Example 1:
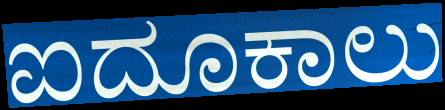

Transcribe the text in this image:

ಐದೂಕಾಲು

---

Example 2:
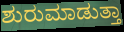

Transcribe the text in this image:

ಶುರುಮಾಡುತ್ತಾ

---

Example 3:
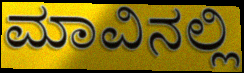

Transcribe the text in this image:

ಮಾವಿನಲ್ಲಿ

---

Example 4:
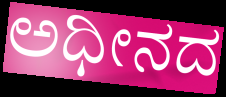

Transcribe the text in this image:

ಅಧೀನದ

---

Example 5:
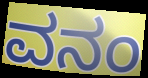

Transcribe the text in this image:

ವನಂ